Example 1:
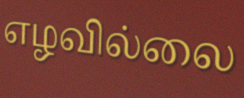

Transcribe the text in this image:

எழவில்லை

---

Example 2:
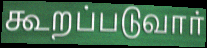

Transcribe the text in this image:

கூறப்படுவார்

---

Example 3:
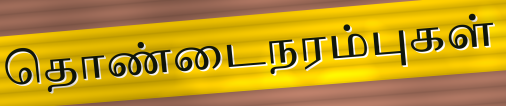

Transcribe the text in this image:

தொண்டைநரம்புகள்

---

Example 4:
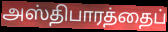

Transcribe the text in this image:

அஸ்திபாரத்தைப்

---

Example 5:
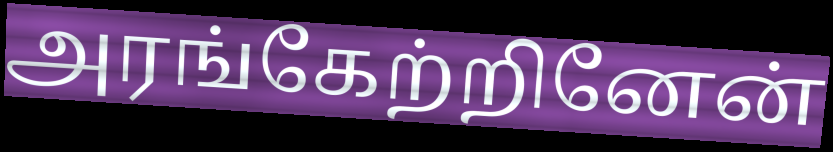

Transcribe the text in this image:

அரங்கேற்றினேன்